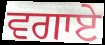
ਵਗਾਏ